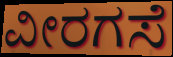
ವೀರಗಸೆ